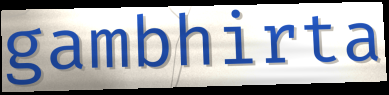
gambhirta